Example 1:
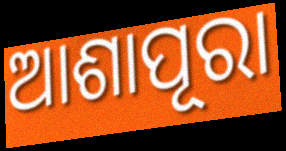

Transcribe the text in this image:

ଆଶାପୂରା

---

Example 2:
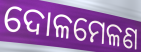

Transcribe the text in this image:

ଦୋଳମେଳଣ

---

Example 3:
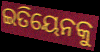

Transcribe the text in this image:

ଇତିୟେନକୁ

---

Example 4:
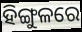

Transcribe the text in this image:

ହିଙ୍ଗୁଳରେ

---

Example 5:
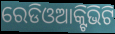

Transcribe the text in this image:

ରେଡିଓଆକ୍ଟିଭିଟି